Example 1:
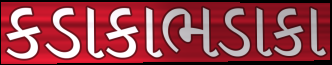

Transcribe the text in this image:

કડાકાભડાકા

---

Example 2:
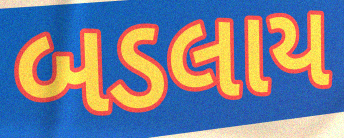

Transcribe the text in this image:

બડલાય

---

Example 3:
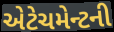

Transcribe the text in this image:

એટેચમેન્ટની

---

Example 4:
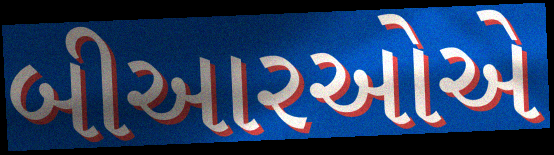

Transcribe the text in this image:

બીઆરઓએ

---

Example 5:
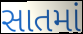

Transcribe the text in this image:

સાતમાં